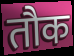
तौक